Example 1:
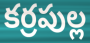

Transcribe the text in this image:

కర్రపుల్ల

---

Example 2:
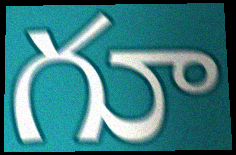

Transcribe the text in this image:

గూ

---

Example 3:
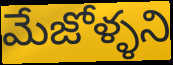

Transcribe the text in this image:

మేజోళ్ళని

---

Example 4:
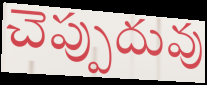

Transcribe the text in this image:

చెప్పుదువు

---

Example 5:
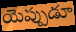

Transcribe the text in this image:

యెప్పుడూ